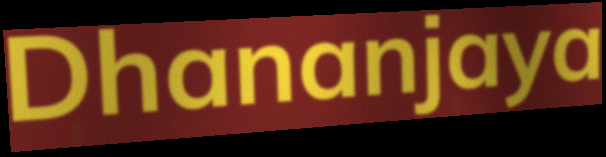
Dhananjaya